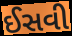
ઈસવી